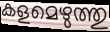
കളമെഴുത്തു